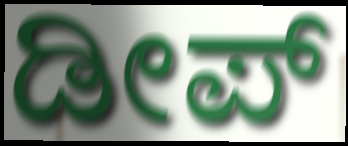
ಡೀಪ್